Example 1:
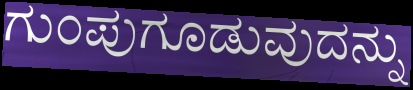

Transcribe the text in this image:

ಗುಂಪುಗೂಡುವುದನ್ನು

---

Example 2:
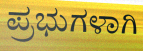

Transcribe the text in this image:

ಪ್ರಭುಗಳಾಗಿ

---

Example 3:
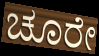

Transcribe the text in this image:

ಚೂರೇ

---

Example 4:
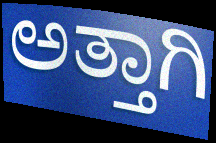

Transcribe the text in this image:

ಅತ್ತಾಗಿ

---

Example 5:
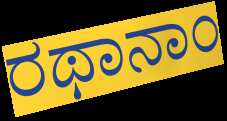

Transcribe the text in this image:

ರಥಾನಾಂ